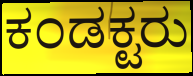
ಕಂಡಕ್ಟರು